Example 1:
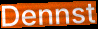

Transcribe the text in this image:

Dennst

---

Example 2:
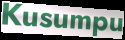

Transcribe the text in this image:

Kusumpu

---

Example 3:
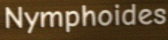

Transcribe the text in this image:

Nymphoides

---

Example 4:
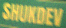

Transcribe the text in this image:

SHUKDEV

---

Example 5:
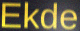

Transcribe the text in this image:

Ekde